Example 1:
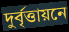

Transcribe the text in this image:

দুর্বৃত্তায়নে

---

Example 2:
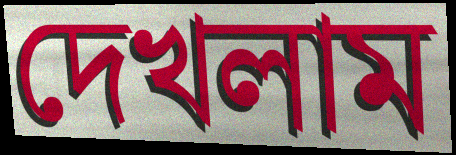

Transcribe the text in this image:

দেখলাম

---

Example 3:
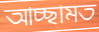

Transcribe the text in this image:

আচ্ছামত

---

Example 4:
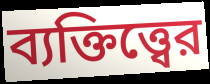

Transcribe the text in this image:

ব্যক্তিত্ত্বের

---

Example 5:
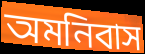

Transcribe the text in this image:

অমনিবাস